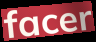
facer